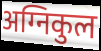
अग्निकुल